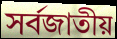
সর্বজাতীয়